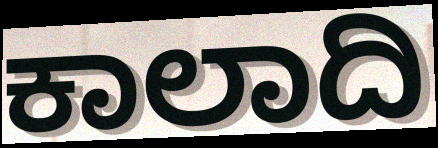
ಕಾಲಾದಿ